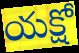
యక్షో